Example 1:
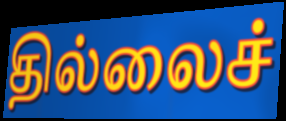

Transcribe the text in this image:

தில்லைச்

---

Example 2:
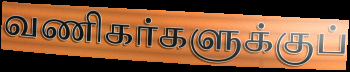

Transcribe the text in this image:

வணிகர்களுக்குப்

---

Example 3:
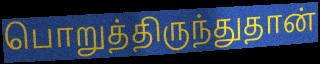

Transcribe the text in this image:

பொறுத்திருந்துதான்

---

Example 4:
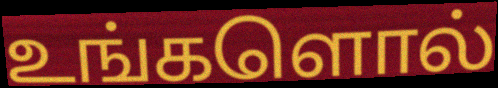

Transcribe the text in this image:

உங்களொல்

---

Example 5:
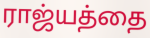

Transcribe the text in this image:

ராஜ்யத்தை